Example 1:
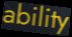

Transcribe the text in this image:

ability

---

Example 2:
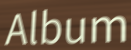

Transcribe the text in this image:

Album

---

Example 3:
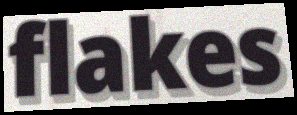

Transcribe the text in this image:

flakes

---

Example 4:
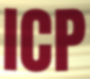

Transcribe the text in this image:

ICP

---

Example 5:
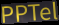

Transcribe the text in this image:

PPTel